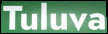
Tuluva